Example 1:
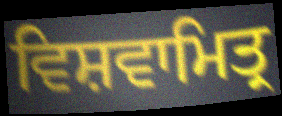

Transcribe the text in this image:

ਵਿਸ਼ਵਾਮਿਤ੍ਰ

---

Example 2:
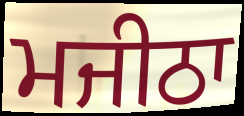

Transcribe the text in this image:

ਮਜੀਠਾ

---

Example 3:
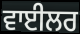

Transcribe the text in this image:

ਵਾਈਲਰ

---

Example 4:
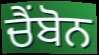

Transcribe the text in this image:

ਚੈਂਬੋਨ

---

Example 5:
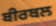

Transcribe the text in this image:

ਬੀਰਬਲ